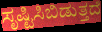
ಸೃಷ್ಟಿಸಿಬಿಡುತ್ತದೆ